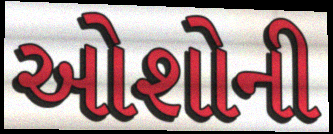
ઓશોની